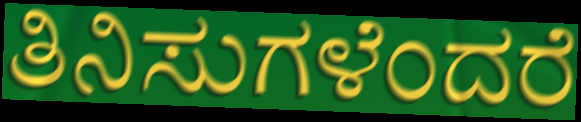
ತಿನಿಸುಗಳೆಂದರೆ